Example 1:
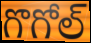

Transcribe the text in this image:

గొగోల్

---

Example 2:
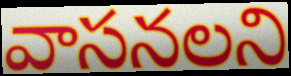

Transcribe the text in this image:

వాసనలని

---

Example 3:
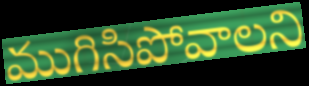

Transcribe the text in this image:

ముగిసిపోవాలని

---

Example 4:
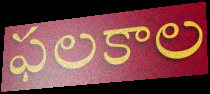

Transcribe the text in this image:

ఫలకాల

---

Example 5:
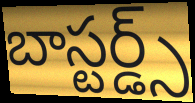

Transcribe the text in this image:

బాస్టర్డ్స్